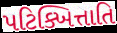
પટિક્ખિત્તાતિ